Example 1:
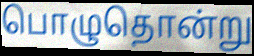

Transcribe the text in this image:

பொழுதொன்று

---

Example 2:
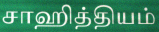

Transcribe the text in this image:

சாஹித்தியம்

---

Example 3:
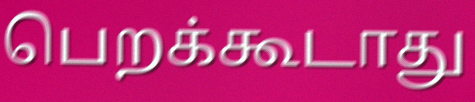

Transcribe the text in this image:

பெறக்கூடாது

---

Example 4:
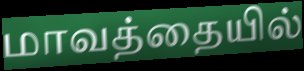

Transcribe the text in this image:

மாவத்தையில்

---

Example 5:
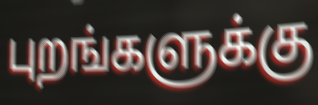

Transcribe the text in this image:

புறங்களுக்கு